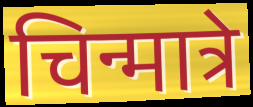
चिन्मात्रे